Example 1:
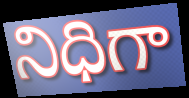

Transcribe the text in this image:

నిధిగా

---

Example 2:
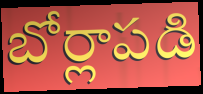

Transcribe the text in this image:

బోర్లాపడి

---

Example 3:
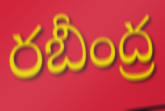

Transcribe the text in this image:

రబీంద్ర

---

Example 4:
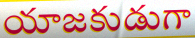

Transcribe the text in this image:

యాజకుడుగా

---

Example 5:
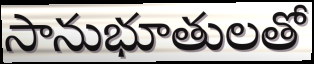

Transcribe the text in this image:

సానుభూతులతో